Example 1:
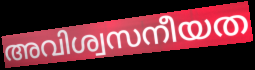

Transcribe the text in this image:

അവിശ്വസനീയത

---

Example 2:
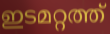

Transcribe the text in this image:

ഇടമറ്റത്ത്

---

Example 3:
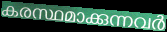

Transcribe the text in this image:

കരസ്ഥമാക്കുന്നവർ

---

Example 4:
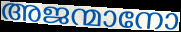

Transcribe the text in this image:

അജന്മാനോ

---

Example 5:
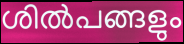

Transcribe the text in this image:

ശിൽപങ്ങളും